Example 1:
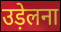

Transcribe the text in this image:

उड़ेलना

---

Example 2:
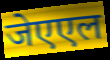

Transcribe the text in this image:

जेएएल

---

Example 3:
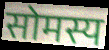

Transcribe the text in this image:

सोमस्य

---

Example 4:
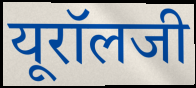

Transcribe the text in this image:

यूरॉलजी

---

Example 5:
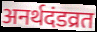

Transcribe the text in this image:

अनर्थदंडव्रत